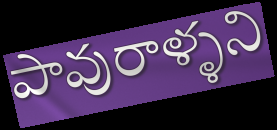
పావురాళ్ళని